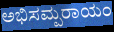
ಅಭಿಸಮ್ಪರಾಯಂ